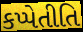
કપ્પેતીતિ